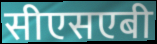
सीएसएबी